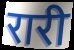
रारी